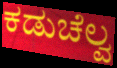
ಕಡುಚೆಲ್ವ